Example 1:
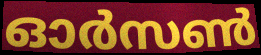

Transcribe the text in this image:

ഓർസൺ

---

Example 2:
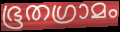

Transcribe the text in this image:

ഭൂതഗ്രാമം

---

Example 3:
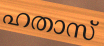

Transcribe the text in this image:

ഹതാസ്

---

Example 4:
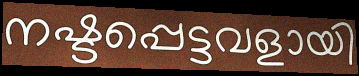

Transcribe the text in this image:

നഷ്ടപ്പെട്ടവളായി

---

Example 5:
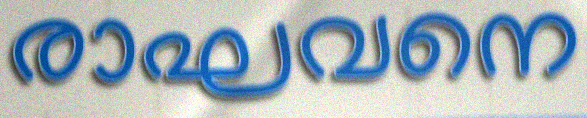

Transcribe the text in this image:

രാഘവനെ